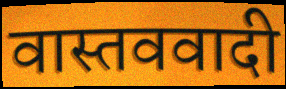
वास्तववादी